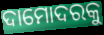
ଦାମୋଦରକୁ